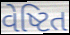
વેષ્ટિત